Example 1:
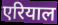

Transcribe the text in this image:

एरियाल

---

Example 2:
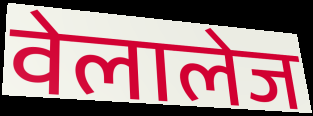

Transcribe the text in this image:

वेलालेज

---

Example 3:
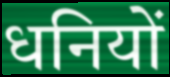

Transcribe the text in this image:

धनियों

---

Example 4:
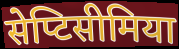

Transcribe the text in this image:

सेप्टिसीमिया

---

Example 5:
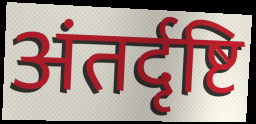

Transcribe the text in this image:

अंतर्दृष्टि